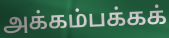
அக்கம்பக்கக்